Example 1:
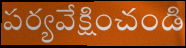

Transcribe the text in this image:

పర్యవేక్షించండి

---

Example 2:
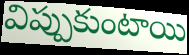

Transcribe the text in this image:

విప్పుకుంటాయి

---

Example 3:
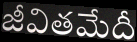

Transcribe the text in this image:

జీవితమేదీ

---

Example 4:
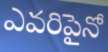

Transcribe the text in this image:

ఎవరిపైనో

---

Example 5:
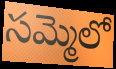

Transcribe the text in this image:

సమ్మెలో